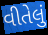
વીતેલું